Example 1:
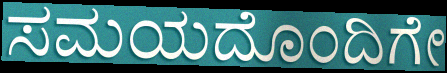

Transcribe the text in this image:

ಸಮಯದೊಂದಿಗೇ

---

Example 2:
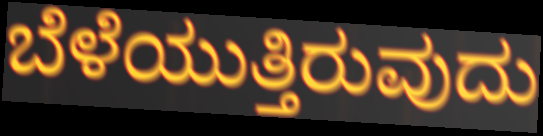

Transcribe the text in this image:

ಬೆಳೆಯುತ್ತಿರುವುದು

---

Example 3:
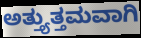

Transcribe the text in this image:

ಅತ್ತ್ಯುತ್ತಮವಾಗಿ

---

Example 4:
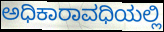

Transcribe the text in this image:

ಅಧಿಕಾರಾವಧಿಯಲ್ಲಿ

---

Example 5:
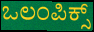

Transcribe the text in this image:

ಒಲಂಪಿಕ್ಸ್